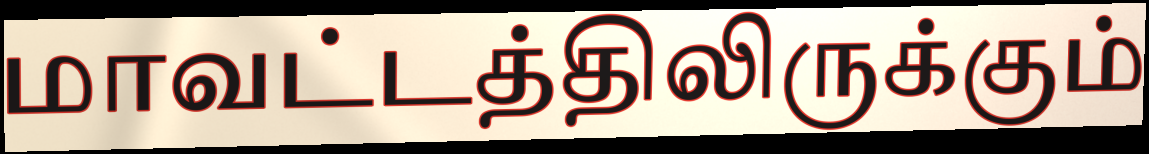
மாவட்டத்திலிருக்கும்